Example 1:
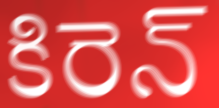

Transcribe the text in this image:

కిరెన్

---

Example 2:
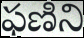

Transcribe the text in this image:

ఫణిని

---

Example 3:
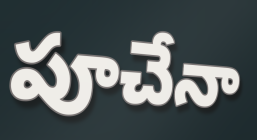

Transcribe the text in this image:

పూచేనా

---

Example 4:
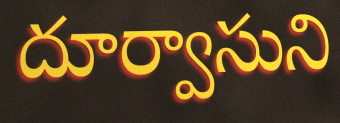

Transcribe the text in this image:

దూర్వాసుని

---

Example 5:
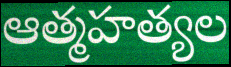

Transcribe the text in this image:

ఆత్మహత్యల